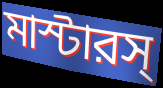
মাস্টারস্